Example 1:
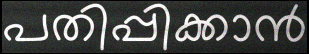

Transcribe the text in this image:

പതിപ്പിക്കാൻ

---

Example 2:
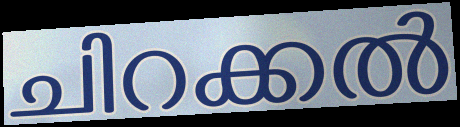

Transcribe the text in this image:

ചിറക്കൽ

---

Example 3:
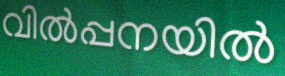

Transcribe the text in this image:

വിൽപ്പനയിൽ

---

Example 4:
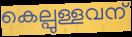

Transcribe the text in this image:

കെല്പുള്ളവന്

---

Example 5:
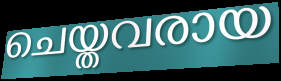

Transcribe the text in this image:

ചെയ്തവരായ